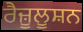
ਰੈਜ਼ੂਲੂਸ਼ਨ